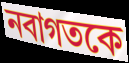
নবাগতকে